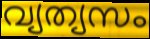
വ്യത്യസം